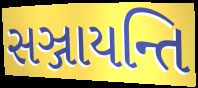
સઞ્જાયન્તિ